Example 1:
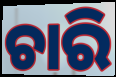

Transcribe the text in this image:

ଚାରି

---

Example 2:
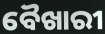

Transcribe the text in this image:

ବୈଖାରୀ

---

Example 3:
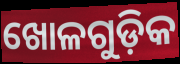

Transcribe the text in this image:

ଖୋଳଗୁଡ଼ିକ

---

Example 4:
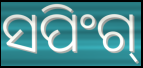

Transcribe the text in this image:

ସପିଂଗ୍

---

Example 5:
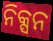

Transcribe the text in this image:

ନିକ୍ସନ